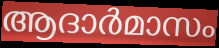
ആദാർമാസം